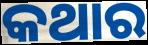
କଥାର